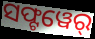
ସଫ୍ଟୱେର୍